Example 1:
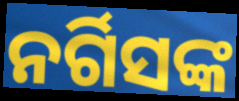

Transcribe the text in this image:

ନର୍ଗିସଙ୍କ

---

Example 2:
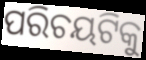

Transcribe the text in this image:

ପରିଚୟଟିକୁ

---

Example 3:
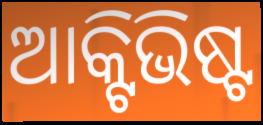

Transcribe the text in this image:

ଆକ୍ଟିଭିଷ୍ଟ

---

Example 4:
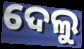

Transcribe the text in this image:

ଦେଲୁ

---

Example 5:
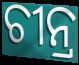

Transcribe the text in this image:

ଚୀନ୍ର